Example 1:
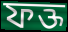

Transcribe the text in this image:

ফক্ত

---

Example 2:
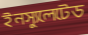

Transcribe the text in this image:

ইনস্যুলেটেড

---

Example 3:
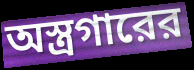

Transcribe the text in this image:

অস্ত্রগারের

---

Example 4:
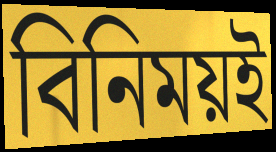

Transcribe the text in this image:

বিনিময়ই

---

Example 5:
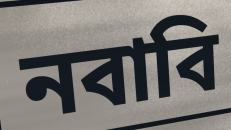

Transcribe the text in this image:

নবাবি